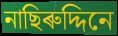
নাছিৰুদ্দিনে